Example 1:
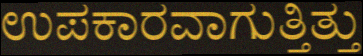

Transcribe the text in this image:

ಉಪಕಾರವಾಗುತ್ತಿತ್ತು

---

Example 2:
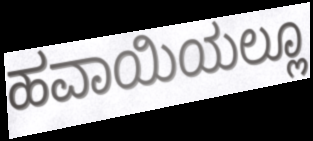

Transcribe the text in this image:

ಹವಾಯಿಯಲ್ಲೂ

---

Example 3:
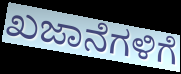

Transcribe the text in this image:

ಖಜಾನೆಗಳಿಗೆ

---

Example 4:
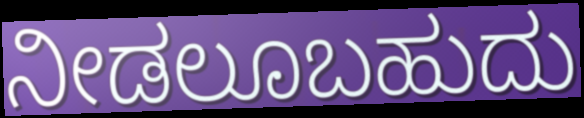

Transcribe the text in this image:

ನೀಡಲೂಬಹುದು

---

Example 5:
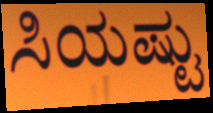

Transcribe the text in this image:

ಸಿಯಷ್ಟು